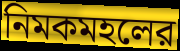
নিমকমহলের